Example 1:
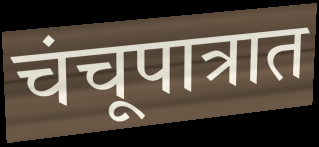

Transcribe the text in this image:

चंचूपात्रात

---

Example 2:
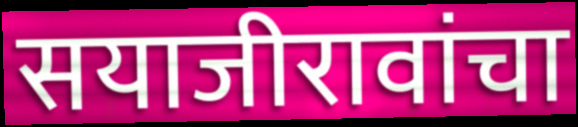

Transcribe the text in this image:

सयाजीरावांचा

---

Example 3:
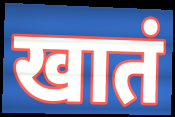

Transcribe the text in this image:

खातं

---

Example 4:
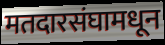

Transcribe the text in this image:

मतदारसंघामधून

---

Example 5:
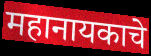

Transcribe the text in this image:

महानायकाचे